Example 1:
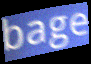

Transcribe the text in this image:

bage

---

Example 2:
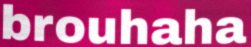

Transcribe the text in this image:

brouhaha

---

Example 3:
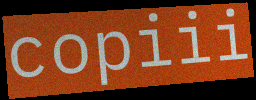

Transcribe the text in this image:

copiii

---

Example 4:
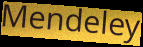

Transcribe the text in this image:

Mendeley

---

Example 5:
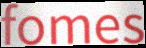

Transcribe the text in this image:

fomes